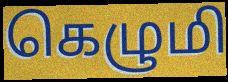
கெழுமி